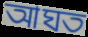
আঘত